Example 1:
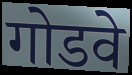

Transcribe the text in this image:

गोडवे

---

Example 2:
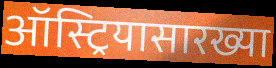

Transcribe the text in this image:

ऑस्ट्रियासारख्या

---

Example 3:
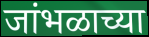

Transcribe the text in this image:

जांभळाच्या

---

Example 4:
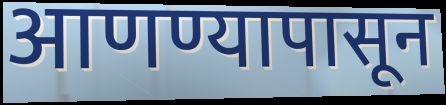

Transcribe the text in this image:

आणण्यापासून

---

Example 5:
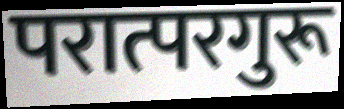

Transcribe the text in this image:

परात्परगुरू